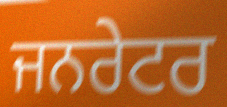
ਜਨਰੇਟਰ